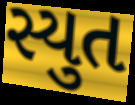
સ્યુત